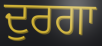
ਦੁਰਗਾ